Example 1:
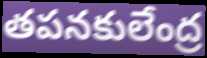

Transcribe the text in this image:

తపనకులేంద్ర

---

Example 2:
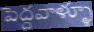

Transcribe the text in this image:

పెద్దవాళ్ళూ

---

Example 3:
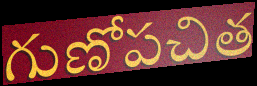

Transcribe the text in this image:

గుణోపచిత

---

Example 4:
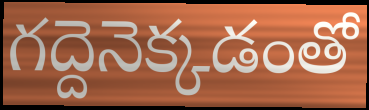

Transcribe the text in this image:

గద్దెనెక్కడంతో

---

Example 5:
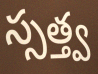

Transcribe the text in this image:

స్సత్త్వ